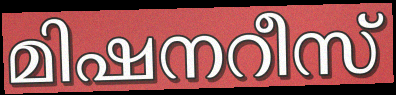
മിഷനറീസ്